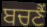
ਬਚਣੈਂ